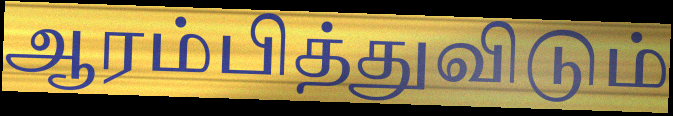
ஆரம்பித்துவிடும்